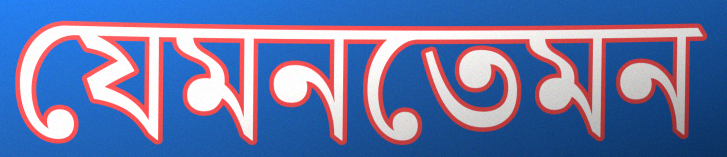
যেমনতেমন